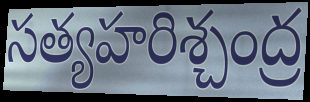
సత్యహరిశ్చంద్ర